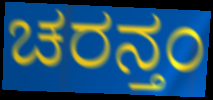
ಚರನ್ತಂ